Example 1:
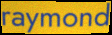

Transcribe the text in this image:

raymond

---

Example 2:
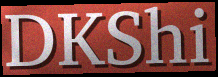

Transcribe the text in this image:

DKShi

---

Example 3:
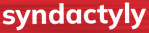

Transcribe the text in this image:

syndactyly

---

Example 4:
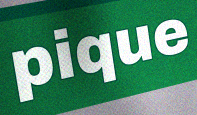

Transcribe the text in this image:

pique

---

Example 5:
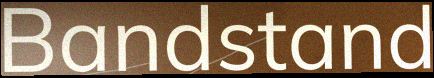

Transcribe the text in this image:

Bandstand